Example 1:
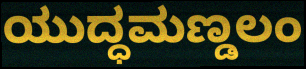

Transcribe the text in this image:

ಯುದ್ಧಮಣ್ಡಲಂ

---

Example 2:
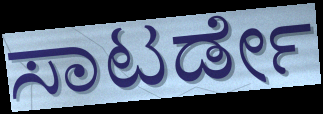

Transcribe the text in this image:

ಸಾಟರ್ಡೇ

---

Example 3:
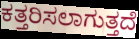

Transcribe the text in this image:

ಕತ್ತರಿಸಲಾಗುತ್ತದೆ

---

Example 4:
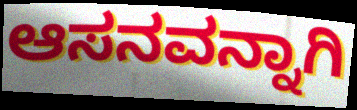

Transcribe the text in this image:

ಆಸನವನ್ನಾಗಿ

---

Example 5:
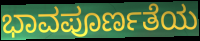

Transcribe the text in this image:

ಭಾವಪೂರ್ಣತೆಯ